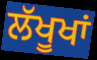
ਲੱਖੂਖਾਂ